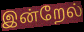
இன்றேல்